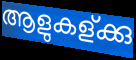
ആളുകള്ക്കു